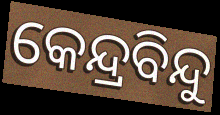
କେନ୍ଦ୍ରବିନ୍ଦୁ